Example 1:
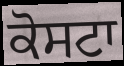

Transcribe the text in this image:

ਕੋਸਟਾ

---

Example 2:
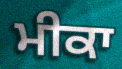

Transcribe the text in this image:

ਮੀਕਾ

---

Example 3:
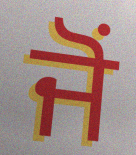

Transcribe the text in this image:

ਜੋਂ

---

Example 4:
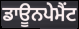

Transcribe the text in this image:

ਡਾਊਨਪੇਮੈਂਟ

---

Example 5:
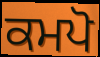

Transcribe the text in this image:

ਕਮਪੋ